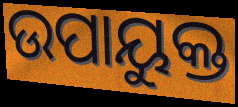
ଉପାୟୁକ୍ତ